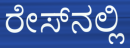
ರೇಸ್‍ನಲ್ಲಿ